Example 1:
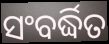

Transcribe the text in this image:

ସଂବର୍ଦ୍ଧିତ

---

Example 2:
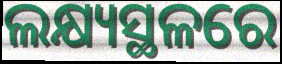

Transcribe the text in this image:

ଲକ୍ଷ୍ୟସ୍ଥଳରେ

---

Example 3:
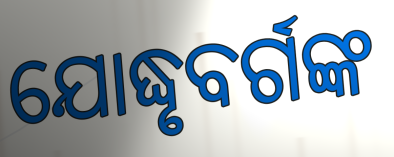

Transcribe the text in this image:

ଯୋଦ୍ଧୃବର୍ଗଙ୍କ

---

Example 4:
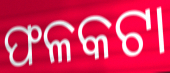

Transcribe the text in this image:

ଫଳକଟା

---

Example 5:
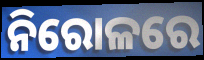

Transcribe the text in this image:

ନିରୋଳରେ